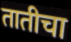
तातीचा